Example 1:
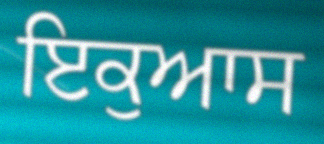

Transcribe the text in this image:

ਇਕੁਆਸ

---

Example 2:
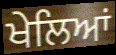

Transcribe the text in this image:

ਖੇਲਿਆਂ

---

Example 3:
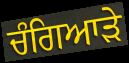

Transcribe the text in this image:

ਚੰਗਿਆੜੇ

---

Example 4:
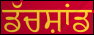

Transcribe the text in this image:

ਡੱਚਸ਼ਾਂਡ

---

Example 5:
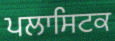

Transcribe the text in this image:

ਪਲਾਸਿਟਕ